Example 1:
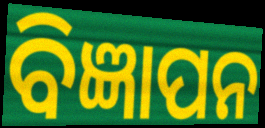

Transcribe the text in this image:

ବିଜ୍ଞାପନ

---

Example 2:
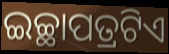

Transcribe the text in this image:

ଇଚ୍ଛାପତ୍ରଟିଏ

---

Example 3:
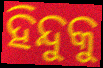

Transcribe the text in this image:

ହିନ୍ଦୁକୁ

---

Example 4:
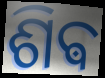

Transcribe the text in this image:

ଶିଵ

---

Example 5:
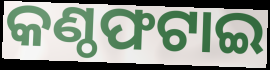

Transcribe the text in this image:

କଣ୍ଠଫଟାଇ